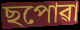
ছপোৱা